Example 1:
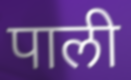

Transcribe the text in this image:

पाली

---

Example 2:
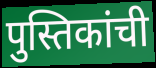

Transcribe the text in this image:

पुस्तिकांची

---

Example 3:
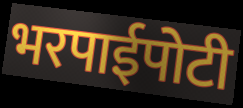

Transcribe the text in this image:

भरपाईपोटी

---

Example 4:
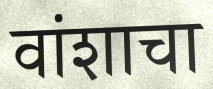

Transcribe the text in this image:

वांशाचा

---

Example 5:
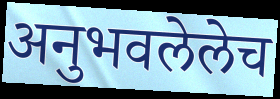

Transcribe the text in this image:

अनुभवलेलेच